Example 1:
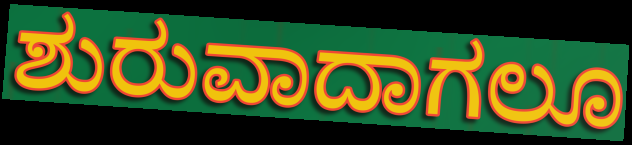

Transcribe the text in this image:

ಶುರುವಾದಾಗಲೂ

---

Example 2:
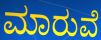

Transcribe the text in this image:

ಮಾರುವೆ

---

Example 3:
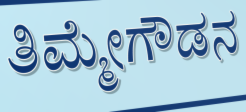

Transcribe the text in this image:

ತಿಮ್ಮೇಗೌಡನ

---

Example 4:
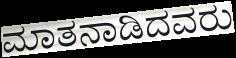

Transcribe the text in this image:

ಮಾತನಾಡಿದವರು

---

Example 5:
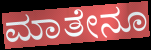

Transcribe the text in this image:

ಮಾತೇನೂ